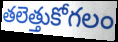
తలెత్తుకోగలం